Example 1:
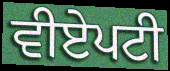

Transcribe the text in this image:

ਵੀਏਪਟੀ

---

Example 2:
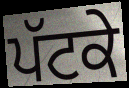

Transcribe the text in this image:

ਪੱਟਕੇ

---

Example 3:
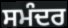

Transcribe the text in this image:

ਸਮੰਦਰ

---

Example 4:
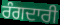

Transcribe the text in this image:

ਰੰਗਦਾਰੀ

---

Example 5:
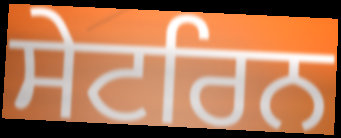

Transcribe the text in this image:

ਸੇਟਰਿਨ